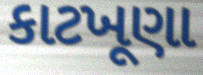
કાટખૂણા